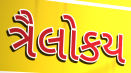
ત્રૈલોકય